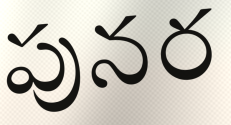
పునర